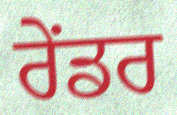
ਰੇੰਡਰ